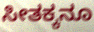
ಸೀತಕ್ಕನೂ